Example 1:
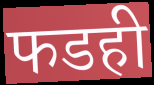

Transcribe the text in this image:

फडही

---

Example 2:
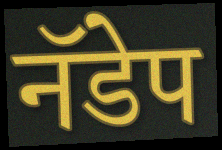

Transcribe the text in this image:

नॅडेप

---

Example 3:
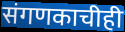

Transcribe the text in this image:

संगणकाचीही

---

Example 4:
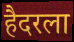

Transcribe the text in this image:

हैदरला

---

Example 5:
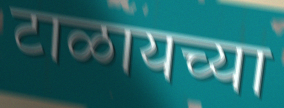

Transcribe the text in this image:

टाळायच्या